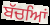
ਬੱਚਆਿਂ